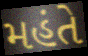
મહંતે